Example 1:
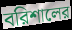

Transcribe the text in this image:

বরিশালের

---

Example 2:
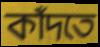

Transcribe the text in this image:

কাঁদতে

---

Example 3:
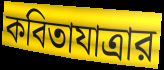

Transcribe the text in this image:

কবিতাযাত্রার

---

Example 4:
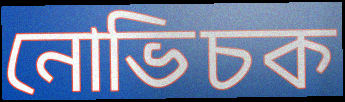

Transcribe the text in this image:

নোভিচক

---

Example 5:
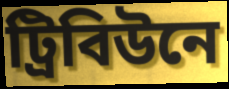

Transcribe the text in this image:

ট্রিবিউনে